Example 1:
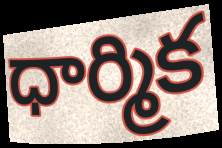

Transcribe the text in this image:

ధార్మిక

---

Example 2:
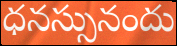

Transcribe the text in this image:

ధనస్సునందు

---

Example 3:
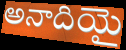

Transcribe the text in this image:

అనాదియై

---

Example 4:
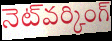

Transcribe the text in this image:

నెట్‌వర్కింగ్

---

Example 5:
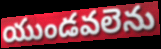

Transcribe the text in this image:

యుండవలెను